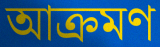
আক্রমণ